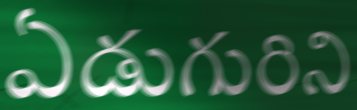
ఏడుగురిని